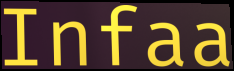
Infaa